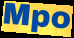
Mpo